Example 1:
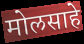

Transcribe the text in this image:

मोलसाहे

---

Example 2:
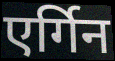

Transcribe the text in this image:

एर्गिन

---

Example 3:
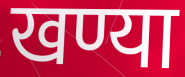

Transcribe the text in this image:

खण्या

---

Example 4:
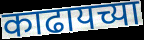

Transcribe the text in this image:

काढायच्या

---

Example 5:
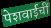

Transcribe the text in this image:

पेशवाईचीं